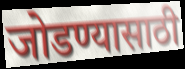
जोडण्यासाठी